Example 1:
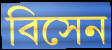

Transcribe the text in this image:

বিসেন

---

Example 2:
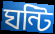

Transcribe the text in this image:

ঘন্টি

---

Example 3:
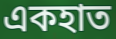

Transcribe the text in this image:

একহাত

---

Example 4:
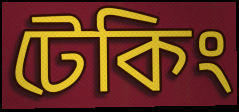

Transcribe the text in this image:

টেকিং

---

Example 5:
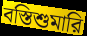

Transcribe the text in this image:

বস্তিশুমারি